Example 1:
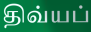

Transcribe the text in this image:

திவ்யப்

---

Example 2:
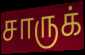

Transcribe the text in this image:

சாருக்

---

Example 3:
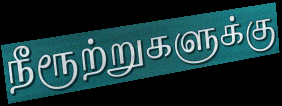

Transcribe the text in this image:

நீரூற்றுகளுக்கு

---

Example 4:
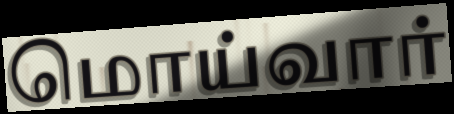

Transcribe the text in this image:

மொய்வார்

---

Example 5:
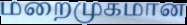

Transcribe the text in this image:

மறைமுகமான